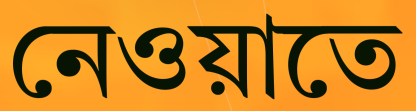
নেওয়াতে